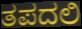
ತಪದಲಿ